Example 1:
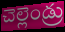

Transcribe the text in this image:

చెల్లెండ్రు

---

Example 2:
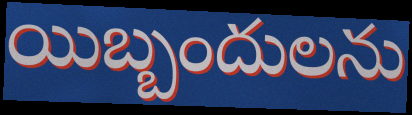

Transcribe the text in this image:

యిబ్బందులను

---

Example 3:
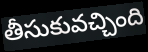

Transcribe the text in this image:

తీసుకువచ్చింది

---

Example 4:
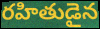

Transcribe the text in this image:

రహితుడైన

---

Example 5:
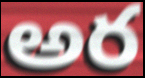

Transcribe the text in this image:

అర